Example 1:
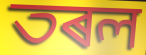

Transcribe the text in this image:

তৰল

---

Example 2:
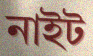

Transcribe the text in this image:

নাইট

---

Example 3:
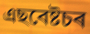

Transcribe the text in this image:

এছবেষ্টচৰ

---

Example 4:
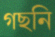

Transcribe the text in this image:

গছনি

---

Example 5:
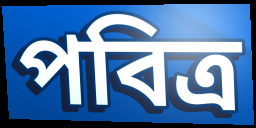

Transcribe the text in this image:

পবিত্ৰ